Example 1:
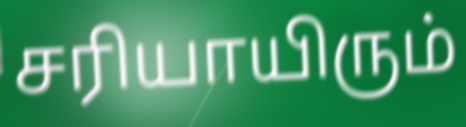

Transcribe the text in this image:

சரியாயிரும்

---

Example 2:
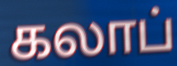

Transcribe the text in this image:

கலாப்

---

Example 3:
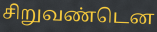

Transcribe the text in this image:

சிறுவண்டென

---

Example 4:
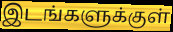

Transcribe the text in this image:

இடங்களுக்குள்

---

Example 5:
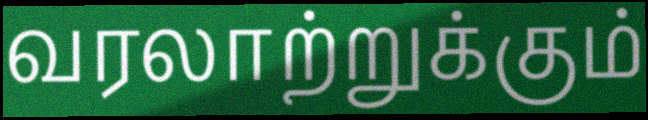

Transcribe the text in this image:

வரலாற்றுக்கும்